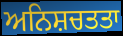
ਅਨਿਸ਼ਚਤਤਾ